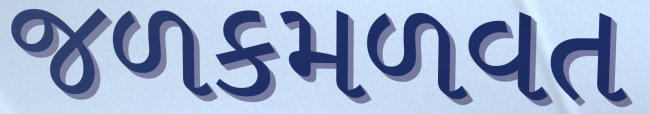
જળકમળવત